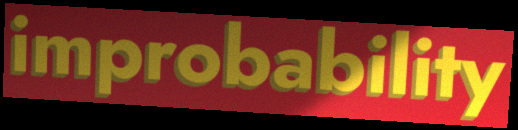
improbability